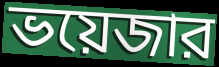
ভয়েজার